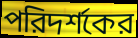
পরিদর্শকের